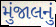
મુંજાલનું